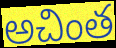
అచింత